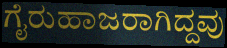
ಗೈರುಹಾಜರಾಗಿದ್ದವು